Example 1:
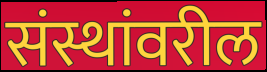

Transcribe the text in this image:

संस्थांवरील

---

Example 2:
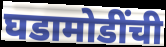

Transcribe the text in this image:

घडामोडींची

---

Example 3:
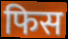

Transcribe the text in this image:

फिस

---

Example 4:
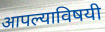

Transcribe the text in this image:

आपल्याविषयी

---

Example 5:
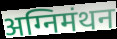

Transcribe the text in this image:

अग्निमंथन